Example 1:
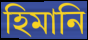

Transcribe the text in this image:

হিমানি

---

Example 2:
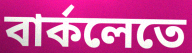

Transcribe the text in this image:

বার্কলেতে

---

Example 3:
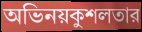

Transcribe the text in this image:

অভিনয়কুশলতার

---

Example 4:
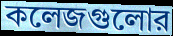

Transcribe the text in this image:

কলেজগুলোর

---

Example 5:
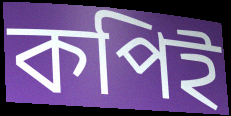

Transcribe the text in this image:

কপিই